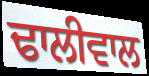
ਢਾਲੀਵਾਲ